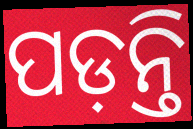
ପଡ଼ନ୍ତି